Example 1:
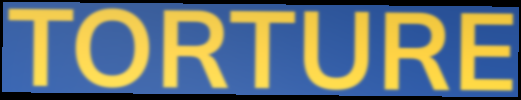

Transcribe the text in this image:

TORTURE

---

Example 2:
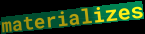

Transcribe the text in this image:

materializes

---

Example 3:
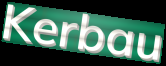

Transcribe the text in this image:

Kerbau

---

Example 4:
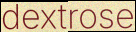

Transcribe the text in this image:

dextrose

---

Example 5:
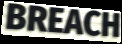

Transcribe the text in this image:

BREACH